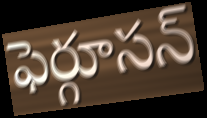
ఫెర్గూసన్